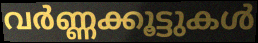
വർണ്ണക്കൂട്ടുകൾ